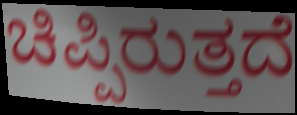
ಚಿಪ್ಪಿರುತ್ತದೆ